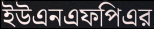
ইউএনএফপিএর